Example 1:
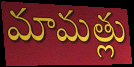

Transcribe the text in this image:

మామత్లు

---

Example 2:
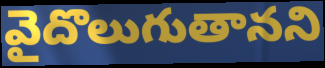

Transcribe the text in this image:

వైదొలుగుతానని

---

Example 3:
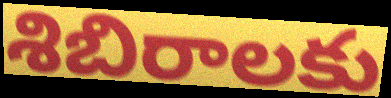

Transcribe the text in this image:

శిబిరాలకు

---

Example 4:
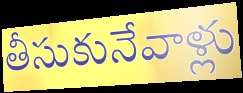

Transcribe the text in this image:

తీసుకునేవాళ్లు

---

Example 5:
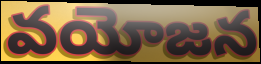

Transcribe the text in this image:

వయోజన